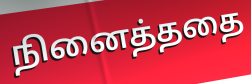
நினைத்ததை